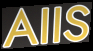
AIIS